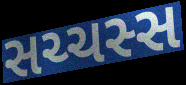
સચ્ચસ્સ